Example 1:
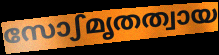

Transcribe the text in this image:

സോഽമൃതത്വായ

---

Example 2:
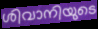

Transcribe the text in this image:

ശിവാനിയുടെ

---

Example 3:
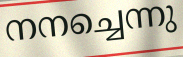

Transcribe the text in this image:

നനച്ചെന്നു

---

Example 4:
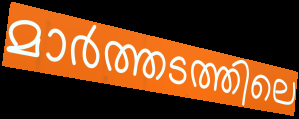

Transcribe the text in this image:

മാർത്തടത്തിലെ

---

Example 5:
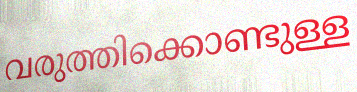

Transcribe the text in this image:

വരുത്തിക്കൊണ്ടുള്ള